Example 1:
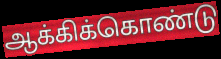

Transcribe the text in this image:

ஆக்கிக்கொண்டு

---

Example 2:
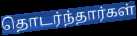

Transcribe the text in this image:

தொடர்ந்தார்கள்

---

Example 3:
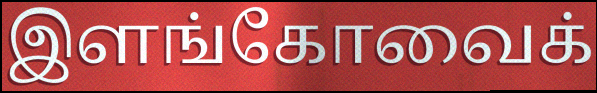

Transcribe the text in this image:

இளங்கோவைக்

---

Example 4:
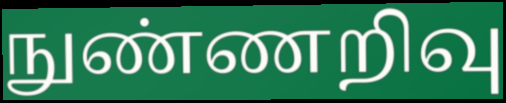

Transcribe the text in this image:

நுண்ணறிவு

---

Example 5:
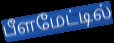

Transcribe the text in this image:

பீளமேட்டில்